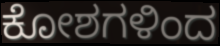
ಕೋಶಗಳಿಂದ